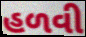
હળવી